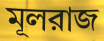
মূলরাজ